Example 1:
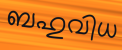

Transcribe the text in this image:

ബഹുവിധ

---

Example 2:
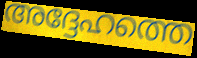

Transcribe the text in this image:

അദ്ദേഹത്തെ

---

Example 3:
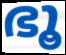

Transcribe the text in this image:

ഭൂ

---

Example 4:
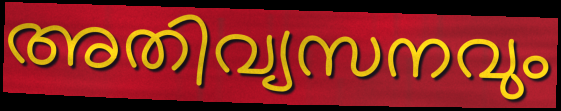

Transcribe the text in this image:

അതിവ്യസനവും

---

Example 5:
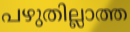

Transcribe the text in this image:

പഴുതില്ലാത്ത